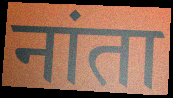
नांता